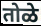
तोळे